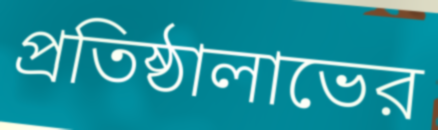
প্রতিষ্ঠালাভের